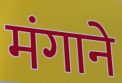
मंगाने